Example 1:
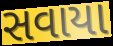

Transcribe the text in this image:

સવાયા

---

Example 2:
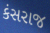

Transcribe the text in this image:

કંસરાજ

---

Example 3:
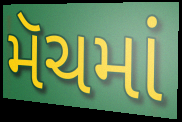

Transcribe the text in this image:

મૅચમાં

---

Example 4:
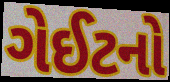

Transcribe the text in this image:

ગેઈટનો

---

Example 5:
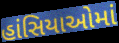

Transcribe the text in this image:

હાંસિયાઓમાં